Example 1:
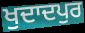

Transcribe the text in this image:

ਖੁਦਾਦਪੁਰ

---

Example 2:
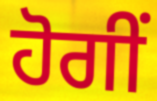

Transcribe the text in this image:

ਹੋਗੀਂ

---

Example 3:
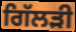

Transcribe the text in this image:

ਗਿੱਲੜੀ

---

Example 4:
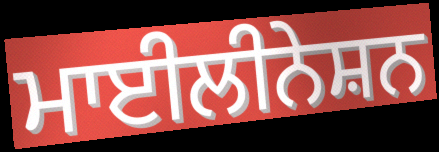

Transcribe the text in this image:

ਮਾਈਲੀਨੇਸ਼ਨ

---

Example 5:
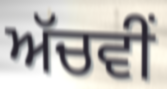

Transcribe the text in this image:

ਅੱਚਵੀਂ